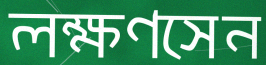
লক্ষণসেন